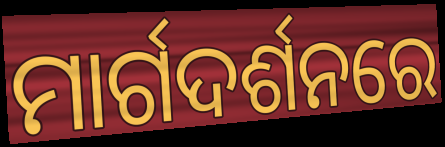
ମାର୍ଗଦର୍ଶନରେ